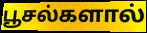
பூசல்களால்